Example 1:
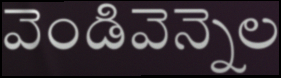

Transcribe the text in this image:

వెండివెన్నెల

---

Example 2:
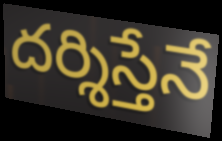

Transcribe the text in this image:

దర్శిస్తేనే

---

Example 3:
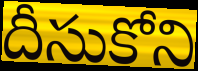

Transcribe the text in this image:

దీసుకోని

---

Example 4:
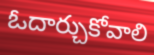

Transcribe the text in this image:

ఓదార్చుకోవాలి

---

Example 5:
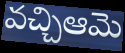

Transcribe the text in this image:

వచ్చిఆమె